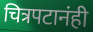
चित्रपटानंही